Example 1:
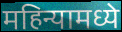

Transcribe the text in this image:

महिन्यामध्ये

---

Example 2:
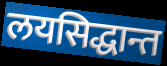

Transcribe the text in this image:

लयसिद्धान्त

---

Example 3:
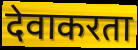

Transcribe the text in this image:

देवाकरता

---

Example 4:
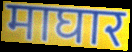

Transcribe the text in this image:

माघार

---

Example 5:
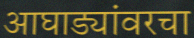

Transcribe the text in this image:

आघाड्यांवरचा